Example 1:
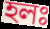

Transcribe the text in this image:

হলঃ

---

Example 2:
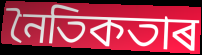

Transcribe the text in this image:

নৈতিকতাৰ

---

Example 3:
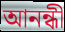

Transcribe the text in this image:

আনন্ধী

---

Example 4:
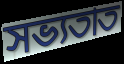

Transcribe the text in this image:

সভ্যতাত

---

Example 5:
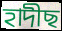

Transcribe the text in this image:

হাদীছ